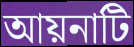
আয়নাটি